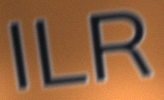
ILR